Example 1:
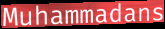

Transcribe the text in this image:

Muhammadans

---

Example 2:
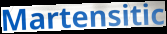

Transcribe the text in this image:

Martensitic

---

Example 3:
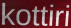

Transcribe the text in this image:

kottiri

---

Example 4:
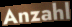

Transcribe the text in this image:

Anzahl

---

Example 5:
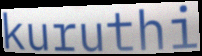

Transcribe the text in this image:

kuruthi